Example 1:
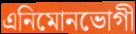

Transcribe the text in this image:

এনিমোনভোগী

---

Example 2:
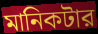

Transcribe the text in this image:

মানিকটার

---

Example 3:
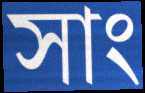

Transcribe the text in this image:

সাং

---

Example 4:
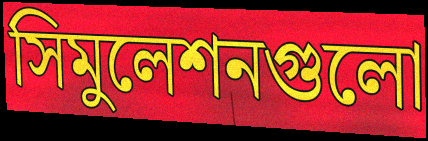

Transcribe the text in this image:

সিমুলেশনগুলো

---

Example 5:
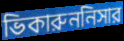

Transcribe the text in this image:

ভিকারুননিসার